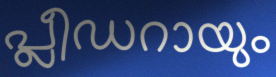
പ്ലീഡറായും